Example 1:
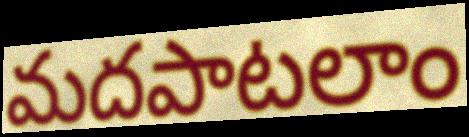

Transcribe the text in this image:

మదపాటలాం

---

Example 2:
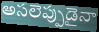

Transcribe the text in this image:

అసలెప్పుడైనా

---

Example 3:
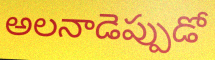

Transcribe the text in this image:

అలనాడెప్పుడో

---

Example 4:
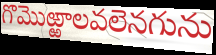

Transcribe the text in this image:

గొమొఱ్ఱాలవలెనగును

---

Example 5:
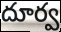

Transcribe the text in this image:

దూర్వ